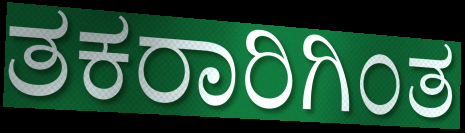
ತಕರಾರಿಗಿಂತ